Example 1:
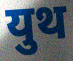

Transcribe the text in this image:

युथ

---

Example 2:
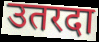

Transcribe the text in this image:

उतरदा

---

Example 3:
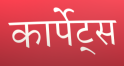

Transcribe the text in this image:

कार्पेट्स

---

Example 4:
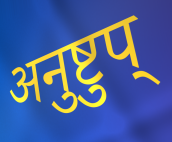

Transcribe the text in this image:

अनुष्टुप्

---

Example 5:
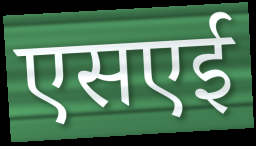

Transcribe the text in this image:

एसएई